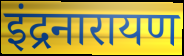
इंद्रनारायण